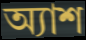
অ্যাশ